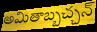
అమితాబ్బచ్చన్